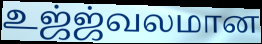
உஜ்ஜ்வலமான